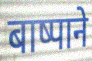
बाष्पाने